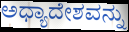
ಅಧ್ಯಾದೇಶವನ್ನು